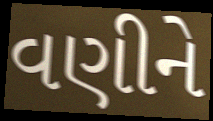
વણીને